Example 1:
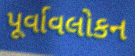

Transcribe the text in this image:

પૂર્વાવલોકન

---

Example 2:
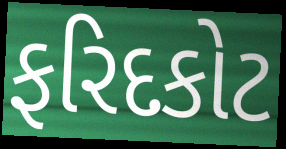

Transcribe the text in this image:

ફરિદકોટ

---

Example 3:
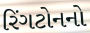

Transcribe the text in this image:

રિંગટોનનો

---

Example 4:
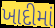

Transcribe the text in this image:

ખાદીમાં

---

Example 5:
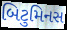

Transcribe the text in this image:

બિટુમિનસ